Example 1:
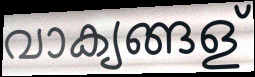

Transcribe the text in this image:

വാക്യങ്ങള്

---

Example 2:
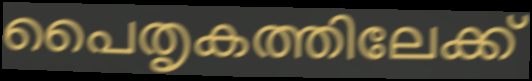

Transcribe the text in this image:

പൈതൃകത്തിലേക്ക്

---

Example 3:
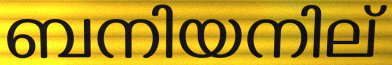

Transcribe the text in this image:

ബനിയനില്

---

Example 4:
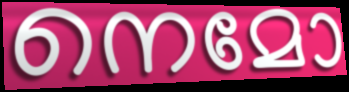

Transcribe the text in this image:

നെമോ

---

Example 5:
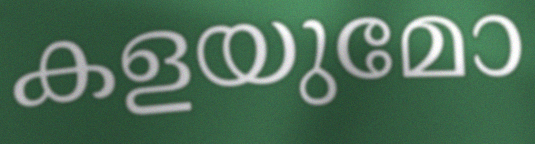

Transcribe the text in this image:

കളയുമോ